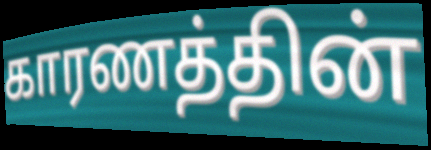
காரணத்தின்